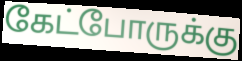
கேட்போருக்கு